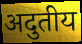
अदुतीय